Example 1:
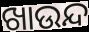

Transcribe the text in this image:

ଖାଉନ୍ଦ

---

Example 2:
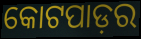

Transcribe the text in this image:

କୋଟପାଡ଼ର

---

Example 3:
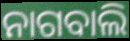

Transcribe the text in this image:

ନାଗବାଲି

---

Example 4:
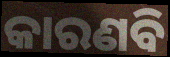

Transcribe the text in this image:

କାରଣବି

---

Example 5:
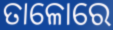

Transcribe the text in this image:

ତାଳୋରେ